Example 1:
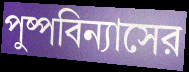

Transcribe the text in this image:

পুষ্পবিন্যাসের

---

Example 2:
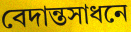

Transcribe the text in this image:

বেদান্তসাধনে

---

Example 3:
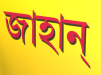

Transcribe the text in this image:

জাহান্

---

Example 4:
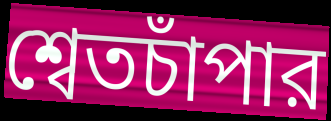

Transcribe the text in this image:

শ্বেতচাঁপার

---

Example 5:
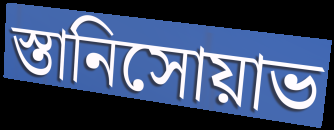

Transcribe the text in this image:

স্তানিসোয়াভ